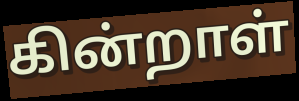
கின்றாள்